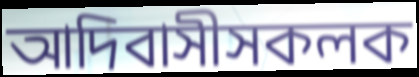
আদিবাসীসকলক